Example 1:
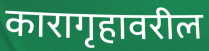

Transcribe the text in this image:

कारागृहावरील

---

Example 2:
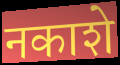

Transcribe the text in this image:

नकाशे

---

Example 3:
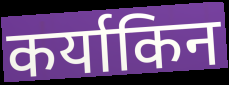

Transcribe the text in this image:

कर्याकिन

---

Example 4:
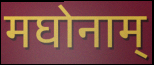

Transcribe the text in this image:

मघोनाम्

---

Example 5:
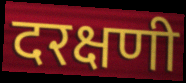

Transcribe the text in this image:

दरक्षणी